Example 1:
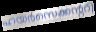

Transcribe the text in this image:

ഹയർസെക്കന്ററി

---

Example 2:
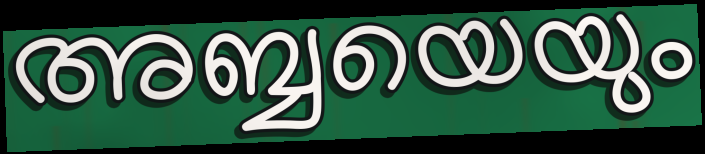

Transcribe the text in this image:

അബ്ബയെയും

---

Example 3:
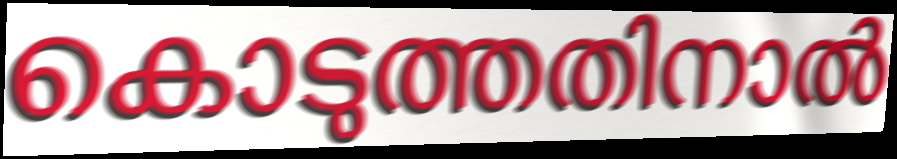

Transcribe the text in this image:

കൊടുത്തതിനാൽ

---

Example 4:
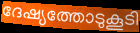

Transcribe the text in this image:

ദേഷ്യത്തോടുകൂടി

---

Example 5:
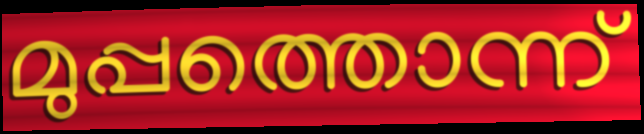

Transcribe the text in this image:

മുപ്പത്തൊന്ന്